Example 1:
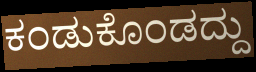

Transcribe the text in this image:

ಕಂಡುಕೊಂಡದ್ದು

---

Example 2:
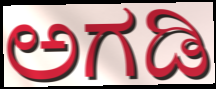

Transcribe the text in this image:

ಅಗಡಿ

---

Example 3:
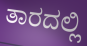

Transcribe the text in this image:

ತಾರದಲ್ಲಿ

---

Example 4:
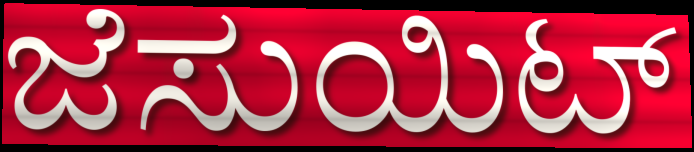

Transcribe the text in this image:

ಜೆಸುಯಿಟ್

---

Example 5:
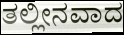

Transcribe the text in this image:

ತಲ್ಲೀನವಾದ